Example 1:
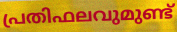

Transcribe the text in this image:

പ്രതിഫലവുമുണ്ട്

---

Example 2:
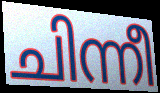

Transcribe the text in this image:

ചിന്നീ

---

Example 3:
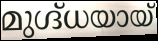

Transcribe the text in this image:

മുഗ്ദ്ധയായ്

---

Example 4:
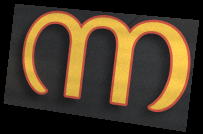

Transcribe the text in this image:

ന്ന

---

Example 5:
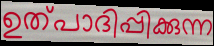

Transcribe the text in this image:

ഉത്പാദിപ്പിക്കുന്ന